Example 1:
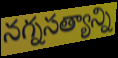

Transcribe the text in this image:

నగ్నసత్యాన్ని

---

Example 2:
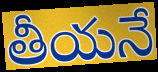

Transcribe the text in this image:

తీయనే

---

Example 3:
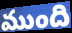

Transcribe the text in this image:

ముంది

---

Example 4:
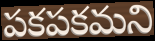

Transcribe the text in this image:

పకపకమని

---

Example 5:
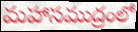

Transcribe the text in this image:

మహాసముద్రంలో